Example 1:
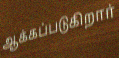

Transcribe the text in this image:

ஆக்கப்படுகிறார்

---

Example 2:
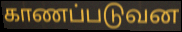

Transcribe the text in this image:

காணப்படுவன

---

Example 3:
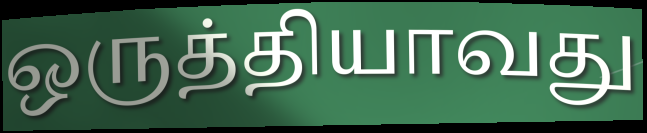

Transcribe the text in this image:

ஒருத்தியாவது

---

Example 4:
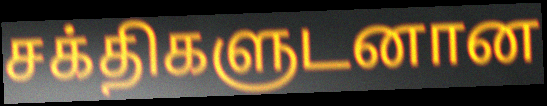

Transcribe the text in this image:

சக்திகளுடனான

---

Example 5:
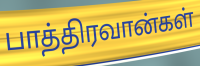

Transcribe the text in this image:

பாத்திரவான்கள்